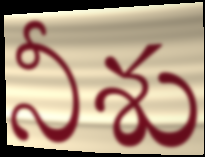
నీశు